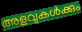
അളവുകൾക്കും